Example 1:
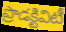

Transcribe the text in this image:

ప్రొడక్టివిటీ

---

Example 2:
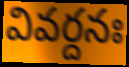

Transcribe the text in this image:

వివర్దనః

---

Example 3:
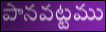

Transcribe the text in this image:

పానవట్టము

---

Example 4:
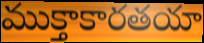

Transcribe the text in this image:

ముక్తాకారతయా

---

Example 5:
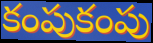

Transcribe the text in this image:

కంపుకంపు